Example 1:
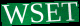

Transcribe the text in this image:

WSET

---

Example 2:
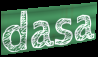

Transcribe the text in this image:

dasa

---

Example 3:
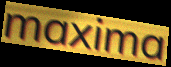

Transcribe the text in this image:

maxima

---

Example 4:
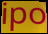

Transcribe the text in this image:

ipo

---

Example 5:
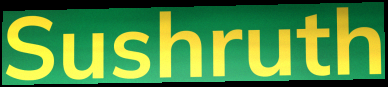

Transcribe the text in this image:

Sushruth